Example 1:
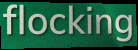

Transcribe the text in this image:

flocking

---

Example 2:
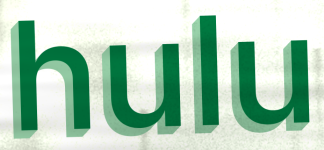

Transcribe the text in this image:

hulu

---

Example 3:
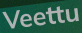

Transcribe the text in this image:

Veettu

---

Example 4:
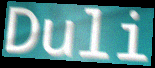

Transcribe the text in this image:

Duli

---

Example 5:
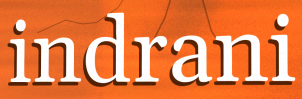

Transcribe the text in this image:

indrani